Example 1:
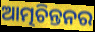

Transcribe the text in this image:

ଆତ୍ମଚିନ୍ତନର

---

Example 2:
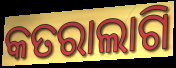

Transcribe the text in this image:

କତରାଲାଗି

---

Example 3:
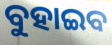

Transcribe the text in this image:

ବୁହାଇବ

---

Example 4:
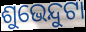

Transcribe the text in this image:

ଶୁଭେନ୍ଦୁଟା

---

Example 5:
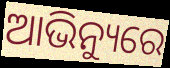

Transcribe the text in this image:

ଆଭିନ୍ୟୁରେ